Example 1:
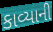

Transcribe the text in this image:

કાવ્યાની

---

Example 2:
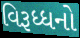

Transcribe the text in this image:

વિરૂધ્ધનો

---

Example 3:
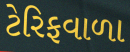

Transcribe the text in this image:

ટેરિફવાળા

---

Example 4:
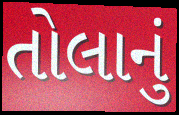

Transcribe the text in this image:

તોલાનું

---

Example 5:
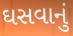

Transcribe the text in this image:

ઘસવાનું